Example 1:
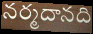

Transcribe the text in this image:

నర్మదానది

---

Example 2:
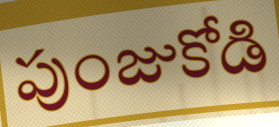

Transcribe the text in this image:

పుంజుకోడి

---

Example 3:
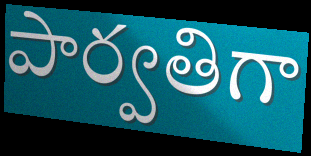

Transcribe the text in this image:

పార్వతిగా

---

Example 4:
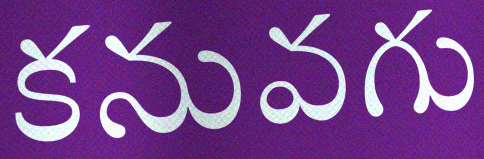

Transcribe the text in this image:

కనువగు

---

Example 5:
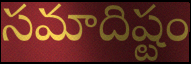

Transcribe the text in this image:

సమాదిష్టం